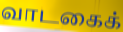
வாடகைக்